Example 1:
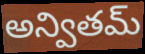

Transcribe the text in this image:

అన్వితమ్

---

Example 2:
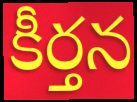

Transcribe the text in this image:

కీర్తన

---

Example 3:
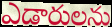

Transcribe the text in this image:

ఎడారులను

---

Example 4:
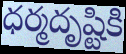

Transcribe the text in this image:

ధర్మదృష్టికి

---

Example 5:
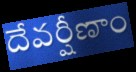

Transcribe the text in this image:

దేవర్షీణాం